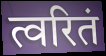
त्वरितं